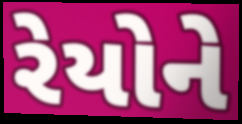
રેયોને